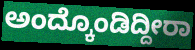
ಅಂದ್ಕೊಂಡಿದ್ದೀರಾ